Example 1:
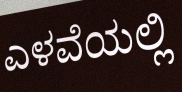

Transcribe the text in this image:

ಎಳವೆಯಲ್ಲಿ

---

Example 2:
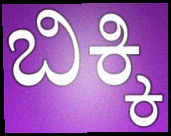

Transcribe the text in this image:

ಬಿಕ್ಕಿ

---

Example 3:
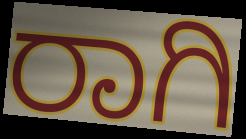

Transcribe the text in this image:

ರಾಗಿ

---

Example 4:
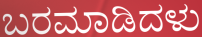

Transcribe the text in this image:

ಬರಮಾಡಿದಳು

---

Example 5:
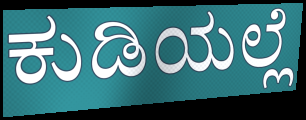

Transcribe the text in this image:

ಕುಡಿಯಲ್ಲೆ